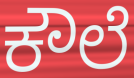
ಕೌಲೆ